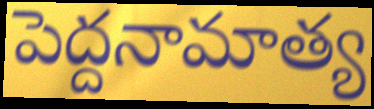
పెద్దనామాత్య